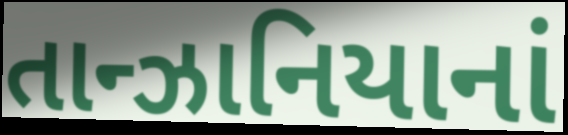
તાન્ઝાનિયાનાં